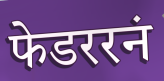
फेडररनं